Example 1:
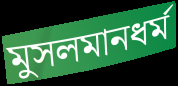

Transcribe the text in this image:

মুসলমানধর্ম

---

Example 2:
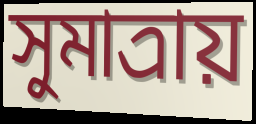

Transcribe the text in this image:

সুমাত্রায়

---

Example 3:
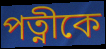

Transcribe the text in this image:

পত্নীকে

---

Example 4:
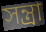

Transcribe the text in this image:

সন্ত্রা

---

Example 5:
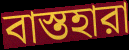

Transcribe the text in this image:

বাস্তহারা